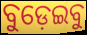
ବୁଡ଼େଇବୁ